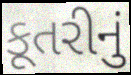
કૂતરીનું